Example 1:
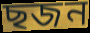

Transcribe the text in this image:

ছজন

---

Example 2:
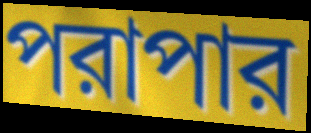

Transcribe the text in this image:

পরাপার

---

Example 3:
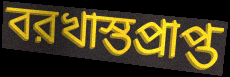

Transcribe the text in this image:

বরখাস্তপ্রাপ্ত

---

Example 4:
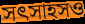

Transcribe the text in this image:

সৎসাহসও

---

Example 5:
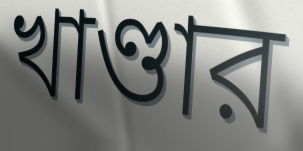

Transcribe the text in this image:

খাণ্ডার